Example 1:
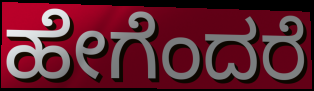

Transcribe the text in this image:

ಹೇಗೆಂದರೆ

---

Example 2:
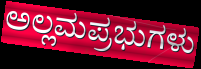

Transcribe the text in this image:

ಅಲ್ಲಮಪ್ರಭುಗಳು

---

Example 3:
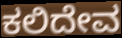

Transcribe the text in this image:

ಕಲಿದೇವ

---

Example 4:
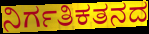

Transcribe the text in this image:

ನಿರ್ಗತಿಕತನದ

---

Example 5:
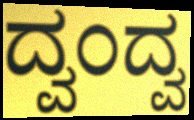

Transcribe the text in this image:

ದ್ವಂದ್ವ